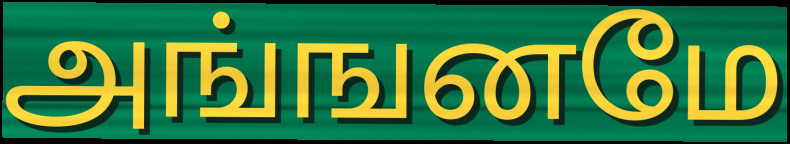
அங்ஙனமே